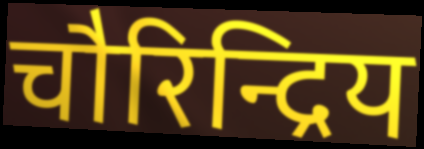
चौरिन्द्रिय